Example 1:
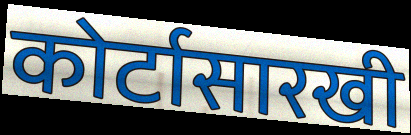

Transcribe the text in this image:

कोर्टासारखी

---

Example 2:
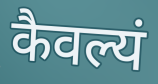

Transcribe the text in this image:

कैवल्यं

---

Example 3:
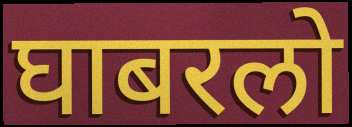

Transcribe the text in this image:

घाबरलो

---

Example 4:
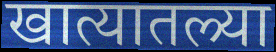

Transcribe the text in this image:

खात्यातल्या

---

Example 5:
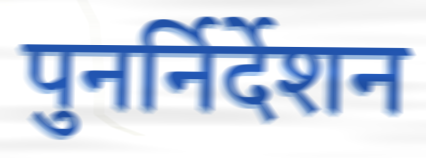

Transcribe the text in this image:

पुनर्निर्देशन